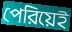
পেরিয়েই